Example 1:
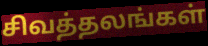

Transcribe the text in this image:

சிவத்தலங்கள்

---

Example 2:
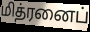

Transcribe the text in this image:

மித்ரனைப்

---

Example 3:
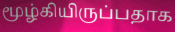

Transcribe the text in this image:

மூழ்கியிருப்பதாக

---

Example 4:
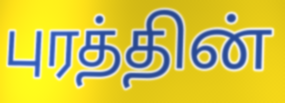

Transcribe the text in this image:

புரத்தின்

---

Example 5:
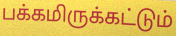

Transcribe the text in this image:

பக்கமிருக்கட்டும்